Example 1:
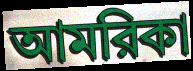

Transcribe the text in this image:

আমরিকা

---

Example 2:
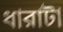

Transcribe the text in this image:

ধারাটা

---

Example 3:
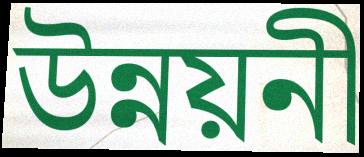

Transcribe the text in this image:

উন্নয়নী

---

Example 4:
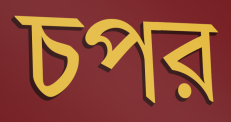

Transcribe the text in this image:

চপর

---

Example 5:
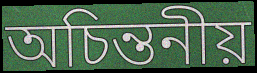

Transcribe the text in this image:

অচিন্তনীয়